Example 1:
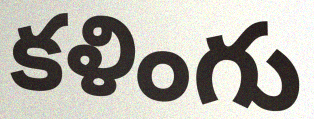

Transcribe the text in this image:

కళింగు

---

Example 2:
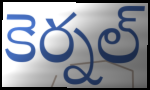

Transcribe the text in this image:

కెర్నల్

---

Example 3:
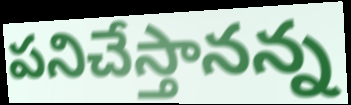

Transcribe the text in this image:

పనిచేస్తానన్న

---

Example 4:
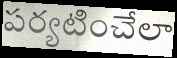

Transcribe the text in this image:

పర్యటించేలా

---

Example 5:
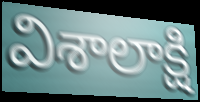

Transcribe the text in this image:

విశాలాక్షి